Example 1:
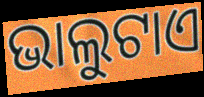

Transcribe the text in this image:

ଭାଲୁଟାଏ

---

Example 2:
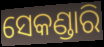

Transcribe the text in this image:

ସେକଣ୍ଡାରି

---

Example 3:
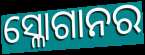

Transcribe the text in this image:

ସ୍ଳୋଗାନର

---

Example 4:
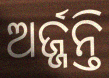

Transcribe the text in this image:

ଅର୍ଜ୍ଜନ୍ତି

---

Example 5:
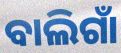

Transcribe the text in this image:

ବାଲିଗାଁ